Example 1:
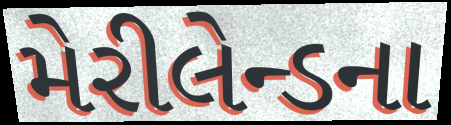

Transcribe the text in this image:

મેરીલેન્ડના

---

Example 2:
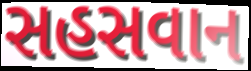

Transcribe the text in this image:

સહસવાન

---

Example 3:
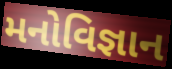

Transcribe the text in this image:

મનોવિજ્ઞાન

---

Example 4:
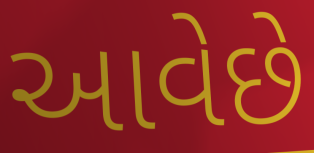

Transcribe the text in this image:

આવેછે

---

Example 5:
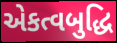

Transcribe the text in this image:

એકત્વબુદ્ધિ